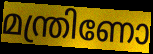
മന്ത്രിണോ